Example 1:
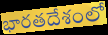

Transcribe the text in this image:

భారతదేశంలో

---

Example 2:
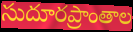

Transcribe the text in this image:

సుదూరప్రాంతాల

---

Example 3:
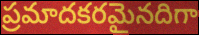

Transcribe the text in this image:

ప్రమాదకరమైనదిగా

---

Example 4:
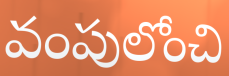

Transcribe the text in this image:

వంపులోంచి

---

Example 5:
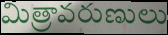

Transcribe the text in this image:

మిత్రావరుణులు